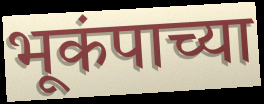
भूकंपाच्या